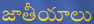
జాతీయాలు